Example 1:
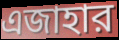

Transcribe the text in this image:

এজাহার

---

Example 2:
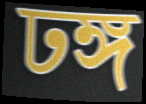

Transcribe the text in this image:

ঢঙ্গ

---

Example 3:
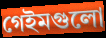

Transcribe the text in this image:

গেইমগুলো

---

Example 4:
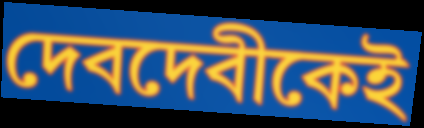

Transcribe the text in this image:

দেবদেবীকেই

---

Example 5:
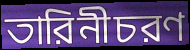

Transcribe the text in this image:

তারিনীচরণ